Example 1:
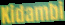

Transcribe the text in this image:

Kidambi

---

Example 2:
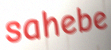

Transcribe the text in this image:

sahebe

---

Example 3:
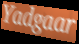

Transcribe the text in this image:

Yadgaar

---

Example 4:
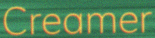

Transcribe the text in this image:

Creamer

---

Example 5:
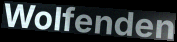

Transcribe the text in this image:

Wolfenden